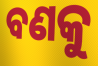
ବଣକୁ